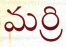
మర్రి